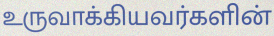
உருவாக்கியவர்களின்